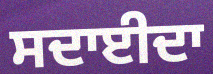
ਸਦਾਈਦਾ